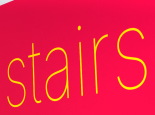
stairs